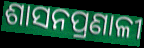
ଶାସନପ୍ରଣାଳୀ